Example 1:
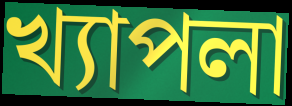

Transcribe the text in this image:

খ্যাপলা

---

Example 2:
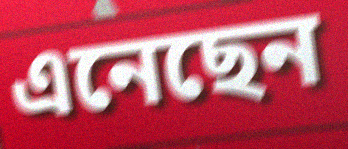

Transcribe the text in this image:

এনেছেন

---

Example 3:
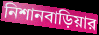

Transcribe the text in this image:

নিশানবাড়িয়ার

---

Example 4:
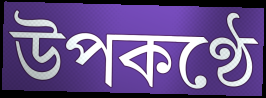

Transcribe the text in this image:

উপকণ্ঠে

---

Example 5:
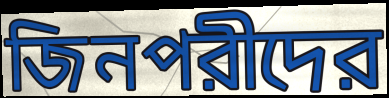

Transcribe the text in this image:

জিনপরীদের